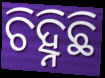
ଚିହ୍ନିଛି